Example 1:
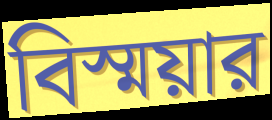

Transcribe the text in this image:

বিস্ময়ার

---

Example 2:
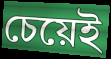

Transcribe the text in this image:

চেয়েই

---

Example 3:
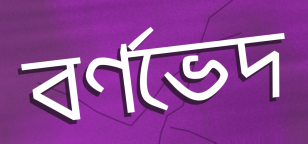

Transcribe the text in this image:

বর্ণভেদ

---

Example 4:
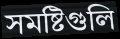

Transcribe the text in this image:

সমষ্টিগুলি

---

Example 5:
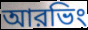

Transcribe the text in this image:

আরভিং